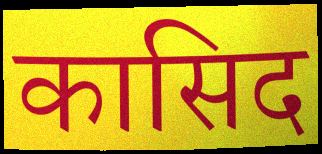
कासिद